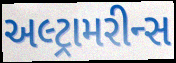
અલ્ટ્રામરીન્સ